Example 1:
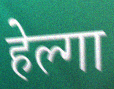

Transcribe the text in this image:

हेल्गा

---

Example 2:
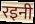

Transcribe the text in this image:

रइनी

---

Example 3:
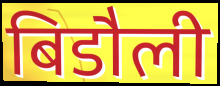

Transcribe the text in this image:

बिडौली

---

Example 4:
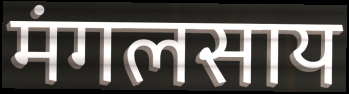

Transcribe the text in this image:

मंगलसाय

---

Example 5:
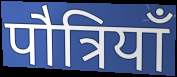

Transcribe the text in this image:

पौत्रियाँ